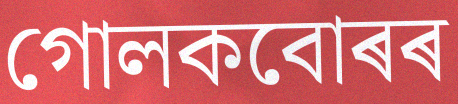
গোলকবোৰৰ